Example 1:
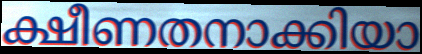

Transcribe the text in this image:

ക്ഷീണതനാക്കിയാ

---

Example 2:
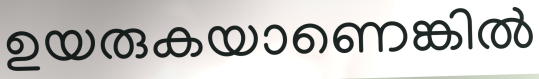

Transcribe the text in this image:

ഉയരുകയാണെങ്കിൽ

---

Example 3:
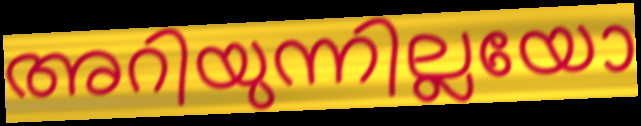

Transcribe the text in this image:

അറിയുന്നില്ലയോ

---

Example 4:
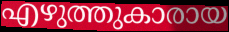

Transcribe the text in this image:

എഴുത്തുകാരായ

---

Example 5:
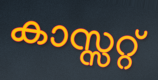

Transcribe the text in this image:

കാസ്സറ്റ്